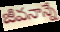
జీవనాన్నే